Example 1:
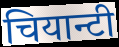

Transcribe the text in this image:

चियान्टी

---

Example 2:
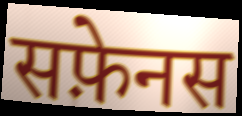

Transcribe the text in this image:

सफ़ेनस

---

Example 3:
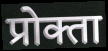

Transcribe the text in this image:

प्रोक्ता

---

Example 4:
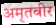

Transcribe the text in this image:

अमृतबीर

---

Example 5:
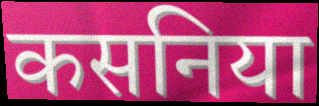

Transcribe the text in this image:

कसनिया